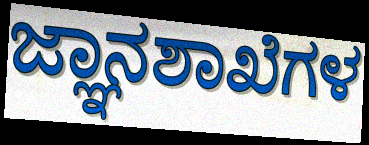
ಜ್ಞಾನಶಾಖೆಗಳ